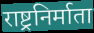
राष्ट्रनिर्माता